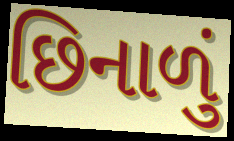
છિનાળું